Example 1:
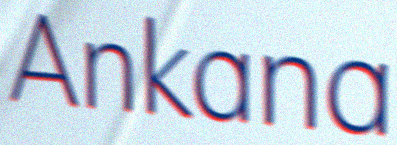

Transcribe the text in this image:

Ankana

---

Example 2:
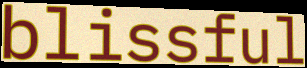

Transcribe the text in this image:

blissful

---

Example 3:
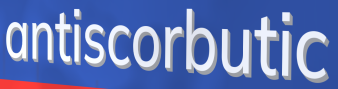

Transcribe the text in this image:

antiscorbutic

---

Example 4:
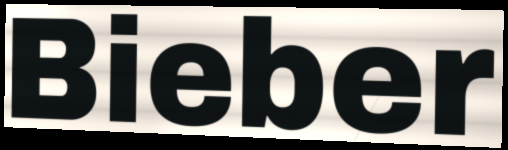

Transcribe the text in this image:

Bieber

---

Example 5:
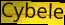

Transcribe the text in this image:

Cybele